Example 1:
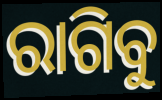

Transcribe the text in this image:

ରାଗିବୁ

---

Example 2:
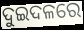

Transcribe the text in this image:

ଦୁଇଦଳରେ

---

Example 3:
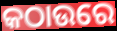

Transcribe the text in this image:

କଠାଉରେ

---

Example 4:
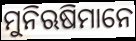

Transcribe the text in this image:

ମୁନିଋଷିମାନେ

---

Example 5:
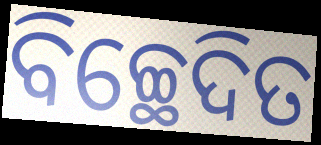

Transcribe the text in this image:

ବିଚ୍ଛେଦିତ